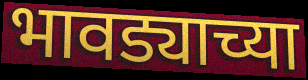
भावड्याच्या